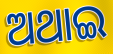
ଅଥାଇ